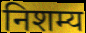
निशम्य